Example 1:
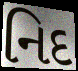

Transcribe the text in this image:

નિદ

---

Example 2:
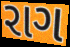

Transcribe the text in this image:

રાગ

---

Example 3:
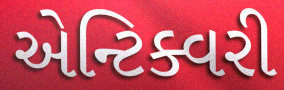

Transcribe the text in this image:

એન્ટિક્વરી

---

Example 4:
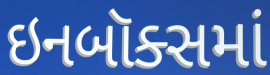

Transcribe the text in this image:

ઇનબૉક્સમાં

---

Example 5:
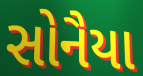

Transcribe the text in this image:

સોનૈયા